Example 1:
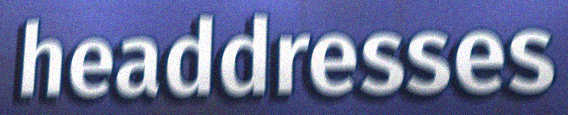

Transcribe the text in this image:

headdresses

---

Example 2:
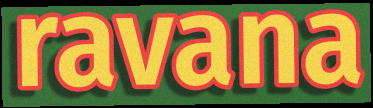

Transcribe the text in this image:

ravana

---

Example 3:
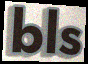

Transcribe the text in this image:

bls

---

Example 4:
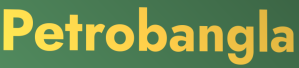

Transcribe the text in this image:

Petrobangla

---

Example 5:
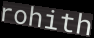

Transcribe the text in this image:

rohith